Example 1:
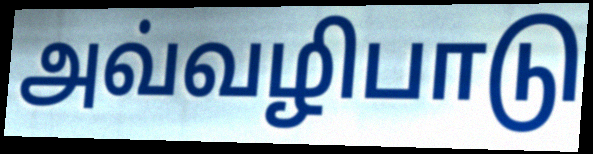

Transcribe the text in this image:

அவ்வழிபாடு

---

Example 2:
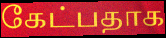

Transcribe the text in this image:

கேட்பதாக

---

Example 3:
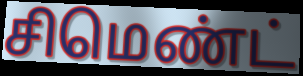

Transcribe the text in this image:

சிமெண்ட்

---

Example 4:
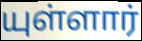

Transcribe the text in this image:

யுள்ளார்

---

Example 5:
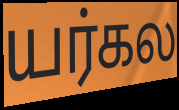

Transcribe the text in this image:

யர்கல